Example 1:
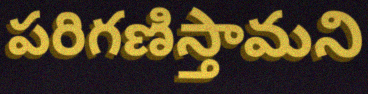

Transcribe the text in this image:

పరిగణిస్తామని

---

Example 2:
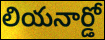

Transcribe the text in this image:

లియనార్డో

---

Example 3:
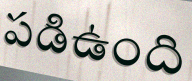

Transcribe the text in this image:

పడిఉంది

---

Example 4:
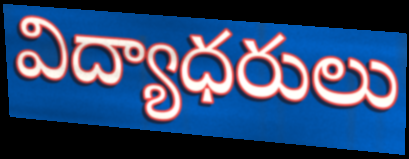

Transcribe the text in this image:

విద్యాధరులు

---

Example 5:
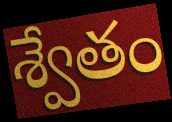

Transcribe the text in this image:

శ్వేతం